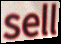
sell